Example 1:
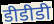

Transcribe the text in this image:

डीडीडी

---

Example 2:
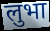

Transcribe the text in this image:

लुभा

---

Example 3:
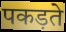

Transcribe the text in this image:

पकड़ते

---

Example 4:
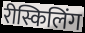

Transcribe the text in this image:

रीस्किलिंग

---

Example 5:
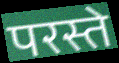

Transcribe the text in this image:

परस्ते